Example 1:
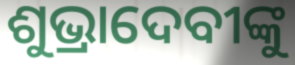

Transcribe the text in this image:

ଶୁଭ୍ରାଦେବୀଙ୍କୁ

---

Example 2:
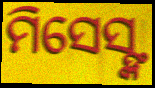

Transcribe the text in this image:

ମିସେସ୍ଙ୍କ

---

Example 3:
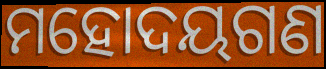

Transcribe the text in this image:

ମହୋଦୟଗଣ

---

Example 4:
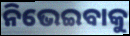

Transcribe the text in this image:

ନିଭେଇବାକୁ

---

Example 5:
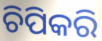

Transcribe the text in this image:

ଚିପିକରି